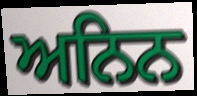
ਅਨਿਨ